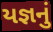
યજ્ઞનું